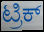
ಟ್ರಿಕ್